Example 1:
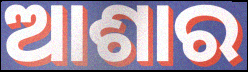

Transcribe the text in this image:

ଆଶାର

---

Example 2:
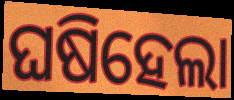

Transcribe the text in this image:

ଘଷିହେଲା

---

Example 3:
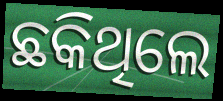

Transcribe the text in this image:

ଛକିଥିଲେ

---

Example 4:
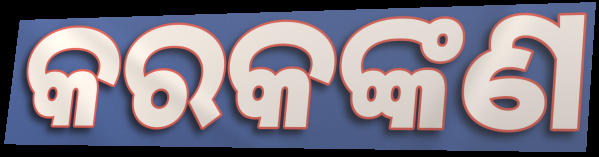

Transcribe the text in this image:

କରକଙ୍କଣ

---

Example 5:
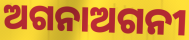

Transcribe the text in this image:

ଅଗନାଅଗନୀ